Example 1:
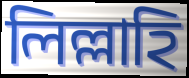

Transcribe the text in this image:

লিল্লাহি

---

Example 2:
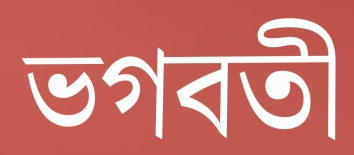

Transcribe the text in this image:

ভগবতী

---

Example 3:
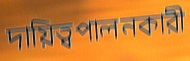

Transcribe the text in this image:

দায়িত্বপালনকারী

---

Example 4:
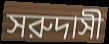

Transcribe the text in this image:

সরুদাসী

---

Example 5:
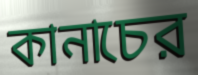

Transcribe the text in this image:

কানাচের